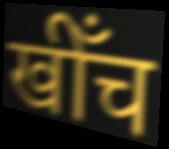
खीँच